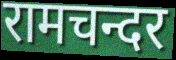
रामचन्दर